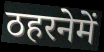
ठहरनेमें